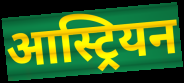
आस्ट्रियन